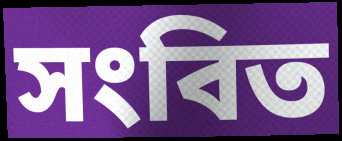
সংবিত